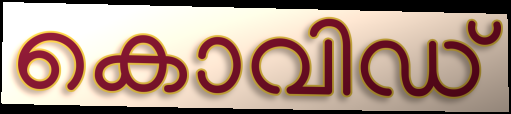
കൊവിഡ്